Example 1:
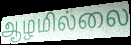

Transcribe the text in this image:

ஆழமில்லை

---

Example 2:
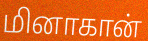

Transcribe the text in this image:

மினாகான்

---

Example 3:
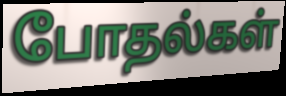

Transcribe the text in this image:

போதல்கள்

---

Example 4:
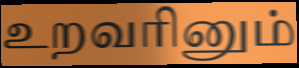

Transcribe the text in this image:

உறவரினும்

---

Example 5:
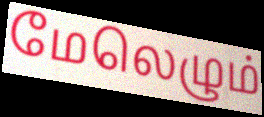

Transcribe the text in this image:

மேலெழும்